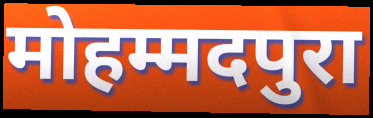
मोहम्मदपुरा